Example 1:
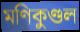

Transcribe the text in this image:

মণিকুণ্ডল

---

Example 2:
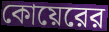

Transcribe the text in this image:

কোয়েরের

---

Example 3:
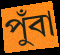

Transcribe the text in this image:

পুঁবা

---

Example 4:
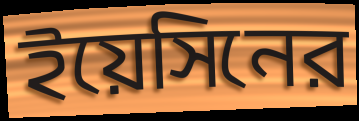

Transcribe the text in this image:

ইয়েসিনের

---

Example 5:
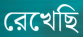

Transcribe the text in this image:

রেখেছি